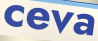
ceva